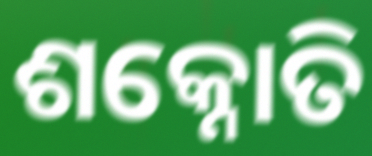
ଶକ୍ନୋତି